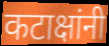
कटाक्षांनी